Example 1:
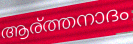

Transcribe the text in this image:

ആര്ത്തനാദം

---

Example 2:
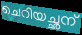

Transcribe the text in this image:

ചെറിയച്ഛന്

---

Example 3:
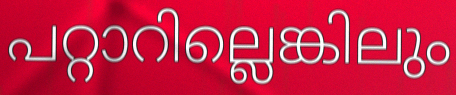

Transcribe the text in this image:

പറ്റാറില്ലെങ്കിലും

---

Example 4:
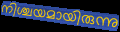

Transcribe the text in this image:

നിശ്ചയമായിരുന്നു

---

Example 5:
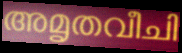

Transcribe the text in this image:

അമൃതവീചി